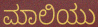
ಮಾಲಿಯು